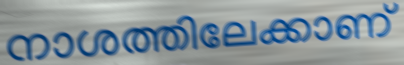
നാശത്തിലേക്കാണ്